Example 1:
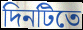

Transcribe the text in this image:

দিনটিতে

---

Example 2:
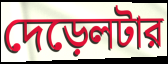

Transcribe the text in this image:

দেড়েলটার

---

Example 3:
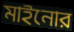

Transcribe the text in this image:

মাইনোর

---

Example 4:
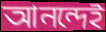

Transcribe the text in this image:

আনন্দেই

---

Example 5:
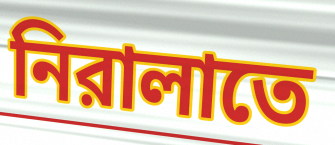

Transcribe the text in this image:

নিরালাতে